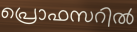
പ്രൊഫസറിൽ